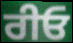
ਰੀਓ